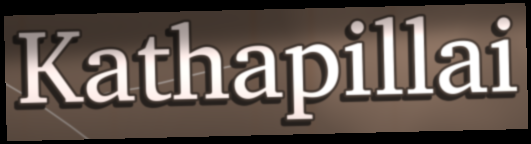
Kathapillai